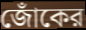
জোঁকের